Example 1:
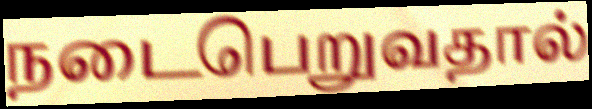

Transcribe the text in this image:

நடைபெறுவதால்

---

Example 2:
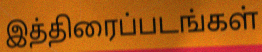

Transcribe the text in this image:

இத்திரைப்படங்கள்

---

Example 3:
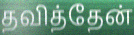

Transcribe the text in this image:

தவித்தேன்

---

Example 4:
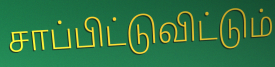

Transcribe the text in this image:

சாப்பிட்டுவிட்டும்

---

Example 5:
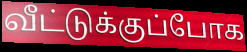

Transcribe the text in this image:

வீட்டுக்குப்போக